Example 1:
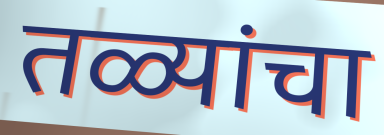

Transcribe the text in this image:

तळ्यांचा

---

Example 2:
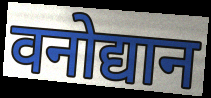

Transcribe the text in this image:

वनोद्यान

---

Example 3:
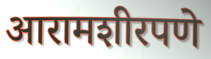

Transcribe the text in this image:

आरामशीरपणे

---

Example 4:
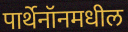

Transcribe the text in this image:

पार्थेनॉनमधील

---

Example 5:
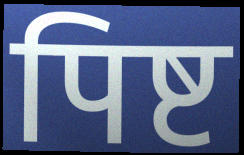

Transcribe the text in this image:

पिष्ट